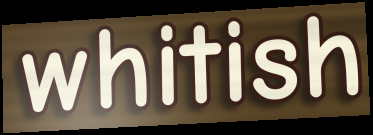
whitish